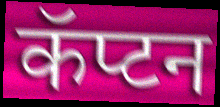
कॅप्टन